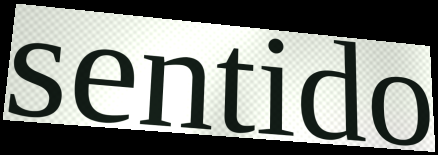
sentido